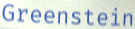
Greenstein